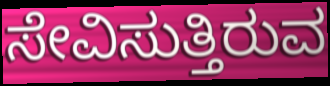
ಸೇವಿಸುತ್ತಿರುವ